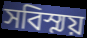
সবিস্ময়